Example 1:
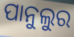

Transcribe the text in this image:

ପାନୁଲୁର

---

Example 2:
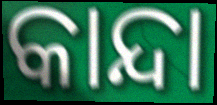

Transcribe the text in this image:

କାନ୍ଦା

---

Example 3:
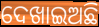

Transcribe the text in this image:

ଦେଖାଇଅଛି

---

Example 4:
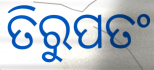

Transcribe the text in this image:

ତିରୁପତଂ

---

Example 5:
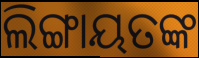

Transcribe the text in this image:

ଲିଙ୍ଗାୟତଙ୍କ